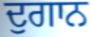
ਦੁਗਾਨ